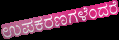
ಉಪಕರಣಗಳೆಂದರೆ